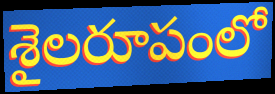
శైలరూపంలో